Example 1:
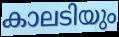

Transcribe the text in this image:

കാലടിയും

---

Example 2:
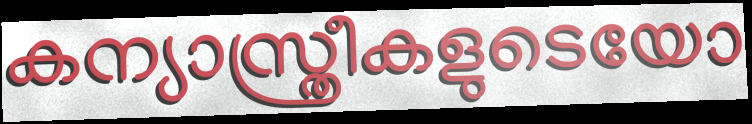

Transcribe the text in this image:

കന്യാസ്ത്രീകളുടെയോ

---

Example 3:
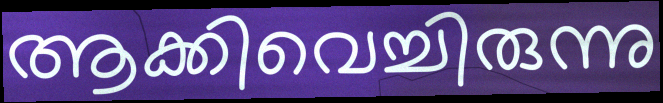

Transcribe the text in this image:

ആക്കിവെച്ചിരുന്നു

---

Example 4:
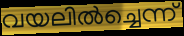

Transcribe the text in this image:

വയലിൽച്ചെന്ന്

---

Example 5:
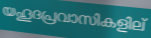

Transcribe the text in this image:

യഹൂദപ്രവാസികളില്